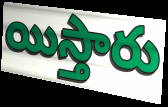
యిస్తారు